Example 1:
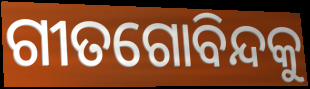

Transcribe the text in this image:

ଗୀତଗୋବିନ୍ଦକୁ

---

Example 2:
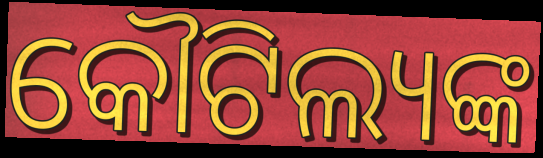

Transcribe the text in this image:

କୌଟିଲ୍ୟଙ୍କ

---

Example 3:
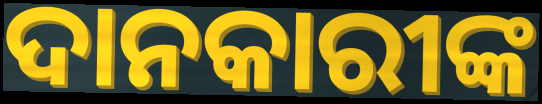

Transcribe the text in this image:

ଦାନକାରୀଙ୍କ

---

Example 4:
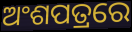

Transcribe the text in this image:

ଅଂଶପତ୍ରରେ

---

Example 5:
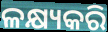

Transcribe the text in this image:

ଳକ୍ଷ୍ୟକରି